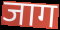
जाग